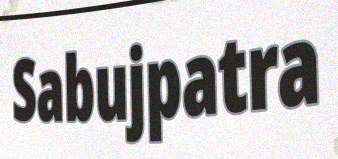
Sabujpatra